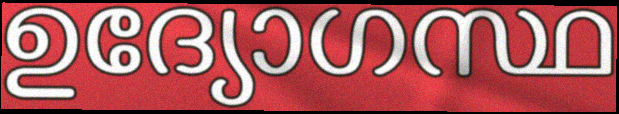
ഉദ്യോഗസ്ഥ